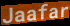
Jaafar